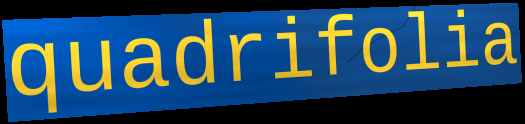
quadrifolia